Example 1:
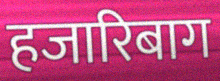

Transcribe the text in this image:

हजारिबाग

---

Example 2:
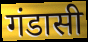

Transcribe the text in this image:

गंडासी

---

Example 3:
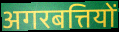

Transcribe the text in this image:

अगरबत्तियों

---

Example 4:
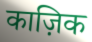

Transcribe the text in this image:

काज़िक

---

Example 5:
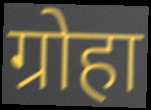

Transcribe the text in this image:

ग्रोहा